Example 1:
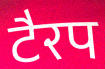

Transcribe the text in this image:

टैरप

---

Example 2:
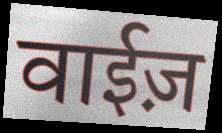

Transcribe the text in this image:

वाईज़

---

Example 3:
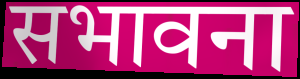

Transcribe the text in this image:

सभावना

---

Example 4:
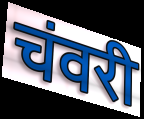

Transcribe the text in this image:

चंवरी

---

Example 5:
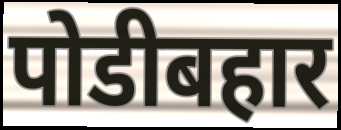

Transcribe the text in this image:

पोडीबहार